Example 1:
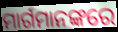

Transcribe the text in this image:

ମାର୍ଗମାନଙ୍କରେ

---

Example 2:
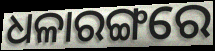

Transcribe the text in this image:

ଧଳାରଙ୍ଗରେ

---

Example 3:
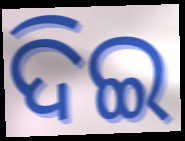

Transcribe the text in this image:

ଦିଇ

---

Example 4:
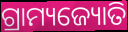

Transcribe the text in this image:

ଗ୍ରାମ୍ୟଜ୍ୟୋତି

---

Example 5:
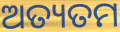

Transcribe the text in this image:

ଅତ୍ୟତମ